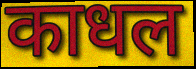
काधल